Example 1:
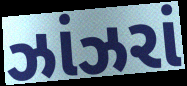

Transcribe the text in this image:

ઝાંઝરાં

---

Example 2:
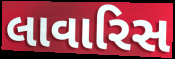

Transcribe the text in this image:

લાવારિસ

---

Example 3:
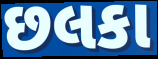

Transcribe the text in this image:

છલકા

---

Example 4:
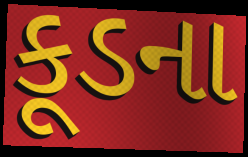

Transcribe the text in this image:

કૂડના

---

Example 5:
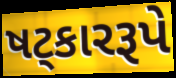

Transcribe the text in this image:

ષટ્કારરૂપે